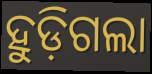
ହୁଡ଼ିଗଲା